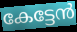
കേട്ടേൻ